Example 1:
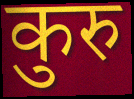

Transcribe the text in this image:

कुरु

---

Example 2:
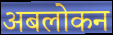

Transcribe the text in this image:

अबलोकन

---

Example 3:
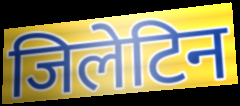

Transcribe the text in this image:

जिलेटिन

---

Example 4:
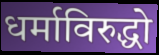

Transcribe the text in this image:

धर्माविरुद्धो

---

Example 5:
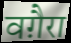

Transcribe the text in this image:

वग़ैरा